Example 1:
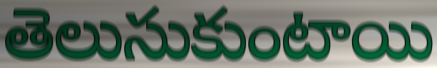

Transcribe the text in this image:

తెలుసుకుంటాయి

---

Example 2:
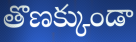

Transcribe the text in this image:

తొణక్కుండా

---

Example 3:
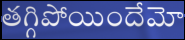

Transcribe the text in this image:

తగ్గిపోయిందేమో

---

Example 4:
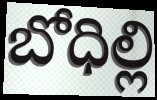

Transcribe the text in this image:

బోధిల్లి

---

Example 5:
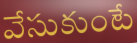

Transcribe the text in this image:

వేసుకుంటే